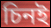
চিনই